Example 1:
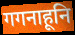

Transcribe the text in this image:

गगनाहूनि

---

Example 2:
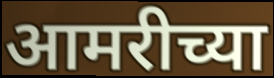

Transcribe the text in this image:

आमरीच्या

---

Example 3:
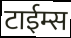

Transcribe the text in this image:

टाईम्स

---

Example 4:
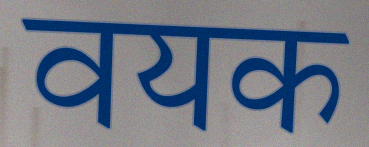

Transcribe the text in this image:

वयक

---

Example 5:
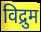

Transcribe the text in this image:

विद्रुम